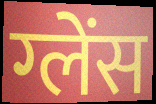
ग्लेंस